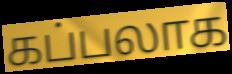
கப்பலாக